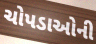
ચોપડાઓની